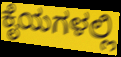
ಕೈಯಗಳಲ್ಲಿ